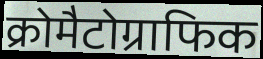
क्रोमैटोग्राफिक